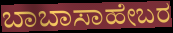
ಬಾಬಾಸಾಹೇಬರ